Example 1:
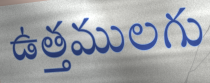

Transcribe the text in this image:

ఉత్తములగు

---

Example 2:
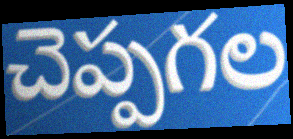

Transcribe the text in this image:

చెప్పగల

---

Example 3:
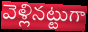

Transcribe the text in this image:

వెళ్లినట్టుగా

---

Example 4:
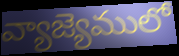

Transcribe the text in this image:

వ్యాజ్యెములో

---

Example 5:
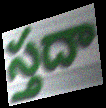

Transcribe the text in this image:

స్తదా